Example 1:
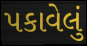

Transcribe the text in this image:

પકાવેલું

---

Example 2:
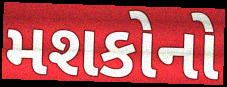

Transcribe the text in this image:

મશકોનો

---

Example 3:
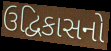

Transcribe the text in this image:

ઉદ્વિકાસનો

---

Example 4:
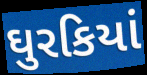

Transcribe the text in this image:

ઘુરકિયાં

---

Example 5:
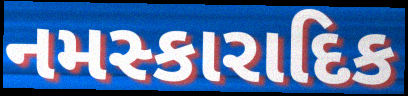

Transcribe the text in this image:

નમસ્કારાદિક